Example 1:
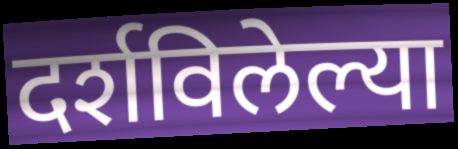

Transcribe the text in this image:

दर्शविलेल्या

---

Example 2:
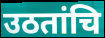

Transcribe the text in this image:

उठतांचि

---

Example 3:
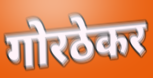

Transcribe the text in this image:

गोरठेकर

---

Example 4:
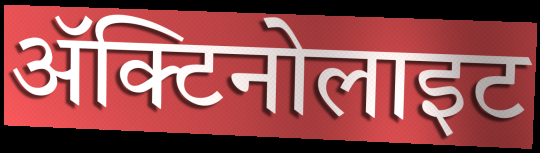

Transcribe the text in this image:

ॲक्टिनोलाइट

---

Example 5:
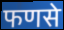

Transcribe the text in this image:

फणसे